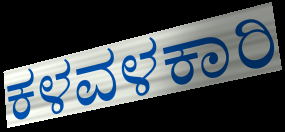
ಕಳವಳಕಾರಿ